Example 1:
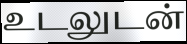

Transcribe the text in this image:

உடலுடன்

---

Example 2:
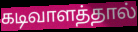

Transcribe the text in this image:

கடிவாளத்தால்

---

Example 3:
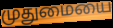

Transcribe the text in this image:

முதுமையை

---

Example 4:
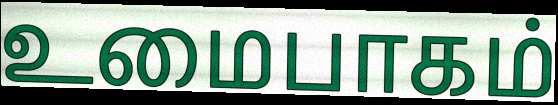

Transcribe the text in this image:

உமைபாகம்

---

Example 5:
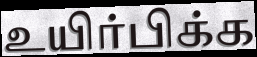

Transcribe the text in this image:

உயிர்பிக்க